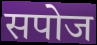
सपोज